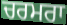
ਚਰਮਰਾ